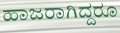
ಹಾಜರಾಗಿದ್ದರೂ